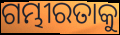
ଗମ୍ଭୀରତାକୁ